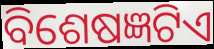
ବିଶେଷଜ୍ଞଟିଏ